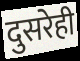
दुसरेही